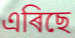
এৰিছে